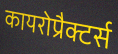
कायरोप्रैक्टर्स